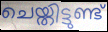
ചെയ്തിട്ടുണ്ട്